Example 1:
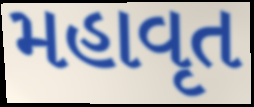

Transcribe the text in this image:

મહાવૃત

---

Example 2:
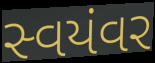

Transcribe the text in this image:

સ્વયંવર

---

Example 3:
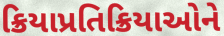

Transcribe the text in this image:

ક્રિયાપ્રતિક્રિયાઓને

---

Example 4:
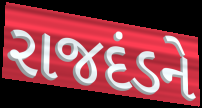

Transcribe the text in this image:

રાજદંડને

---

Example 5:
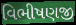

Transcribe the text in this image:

વિભીષણજી